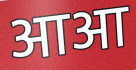
आआ